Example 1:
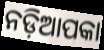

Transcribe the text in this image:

ନଡ଼ିଆପକା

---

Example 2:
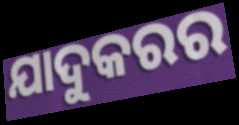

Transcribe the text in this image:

ଯାଦୁକରର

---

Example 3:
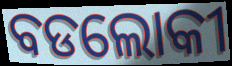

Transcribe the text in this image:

ବଡଲୋକୀ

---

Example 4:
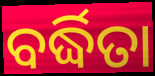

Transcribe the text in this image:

ବର୍ଦ୍ଧିତା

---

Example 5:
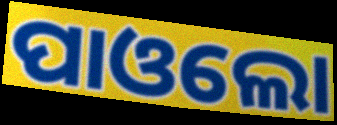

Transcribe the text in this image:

ପାଓଲୋ